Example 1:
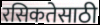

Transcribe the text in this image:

रसिकतेसाठी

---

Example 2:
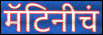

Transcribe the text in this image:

मॅटिनीचं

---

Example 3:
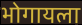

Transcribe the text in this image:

भोगायला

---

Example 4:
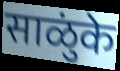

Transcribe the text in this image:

साळुंके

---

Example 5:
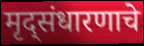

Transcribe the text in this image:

मृद्संधारणाचे